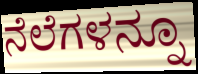
ನೆಲೆಗಳನ್ನೂ